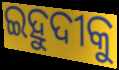
ଇହୁଦୀକୁ